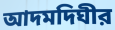
আদমদিঘীর